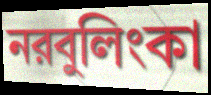
নরবুলিংকা